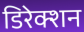
डिरेक्शन